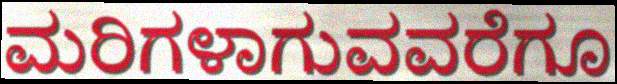
ಮರಿಗಳಾಗುವವರೆಗೂ